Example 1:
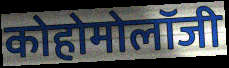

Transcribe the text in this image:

कोहोमोलॉजी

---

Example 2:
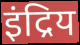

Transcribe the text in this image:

इंद्रिय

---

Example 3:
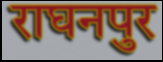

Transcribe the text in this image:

राघनपुर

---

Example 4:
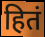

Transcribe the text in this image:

हितं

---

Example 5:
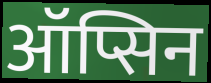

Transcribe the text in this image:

ऑप्सिन